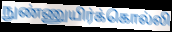
நுண்ணுயிர்க்கொல்லி